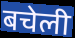
बचेली